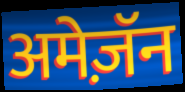
अमेज़ॅन